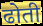
ढोती